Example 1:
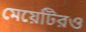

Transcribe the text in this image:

মেয়েটিরও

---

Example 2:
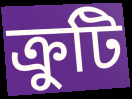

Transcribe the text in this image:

ক্রুটি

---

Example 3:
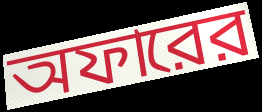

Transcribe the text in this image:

অফারের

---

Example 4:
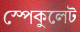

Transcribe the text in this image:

স্পেকুলেট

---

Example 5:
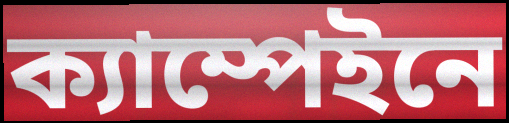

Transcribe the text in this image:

ক্যাম্পেইনে